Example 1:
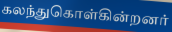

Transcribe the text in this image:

கலந்துகொள்கின்றனர்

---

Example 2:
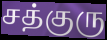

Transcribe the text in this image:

சத்குரு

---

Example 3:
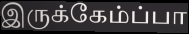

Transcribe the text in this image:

இருக்கேம்ப்பா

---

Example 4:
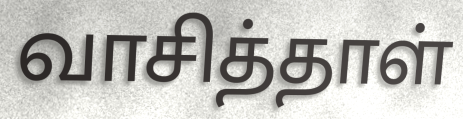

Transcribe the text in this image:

வாசித்தாள்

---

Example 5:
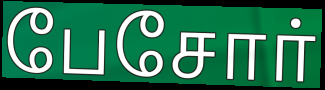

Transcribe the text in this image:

பேசோர்